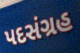
પદસંગ્રહ